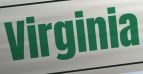
Virginia